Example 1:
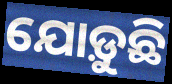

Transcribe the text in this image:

ଯୋଡ଼ୁଛି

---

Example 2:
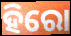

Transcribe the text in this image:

ହିରୋ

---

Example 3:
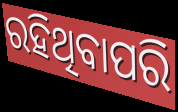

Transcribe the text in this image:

ରହିଥିବାପରି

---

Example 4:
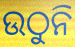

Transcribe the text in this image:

ଉଠୁନି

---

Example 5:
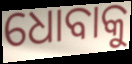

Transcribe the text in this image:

ଧୋବାକୁ